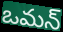
ఒమన్